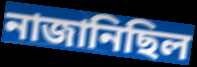
নাজানিছিল